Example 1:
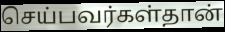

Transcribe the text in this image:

செய்பவர்கள்தான்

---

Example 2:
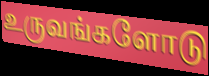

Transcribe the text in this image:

உருவங்களோடு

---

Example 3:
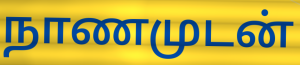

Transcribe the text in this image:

நாணமுடன்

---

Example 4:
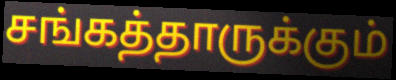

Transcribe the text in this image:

சங்கத்தாருக்கும்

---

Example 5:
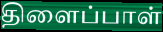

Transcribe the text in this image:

திளைப்பாள்